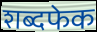
शब्दफेक